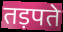
तड़पते